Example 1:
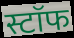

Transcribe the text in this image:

स्‍टॉफ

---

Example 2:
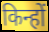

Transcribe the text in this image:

किन्हों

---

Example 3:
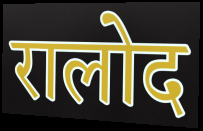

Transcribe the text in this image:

रालोद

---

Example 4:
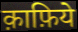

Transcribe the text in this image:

क़ाफ़िये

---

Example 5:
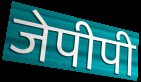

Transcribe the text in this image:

जेपीपी